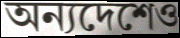
অন্যদেশেও